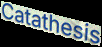
Catathesis